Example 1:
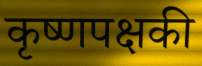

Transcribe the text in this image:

कृष्णपक्षकी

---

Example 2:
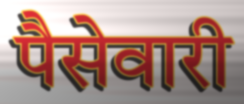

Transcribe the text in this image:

पैसेवारी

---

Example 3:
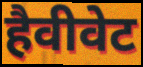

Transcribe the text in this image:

हैवीवेट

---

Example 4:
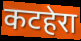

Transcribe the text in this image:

कटहेरा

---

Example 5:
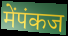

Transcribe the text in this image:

मेंपंकज